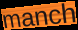
manch